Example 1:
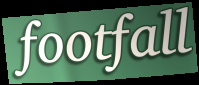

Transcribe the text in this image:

footfall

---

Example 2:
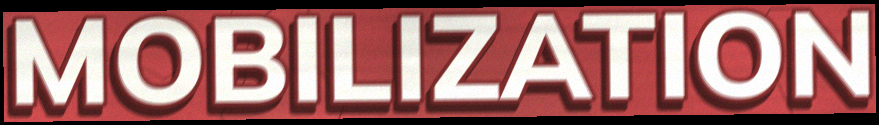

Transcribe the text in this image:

MOBILIZATION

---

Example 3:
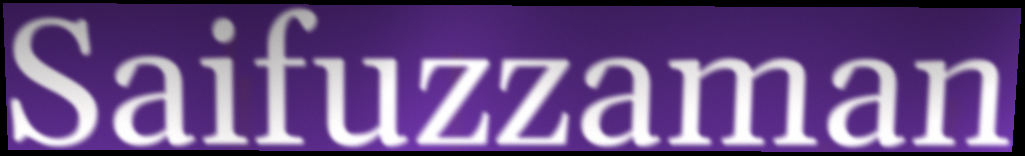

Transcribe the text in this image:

Saifuzzaman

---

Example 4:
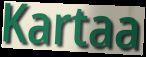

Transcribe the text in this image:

Kartaa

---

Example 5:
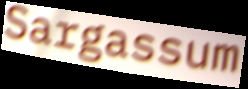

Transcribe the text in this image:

Sargassum